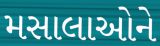
મસાલાઓને